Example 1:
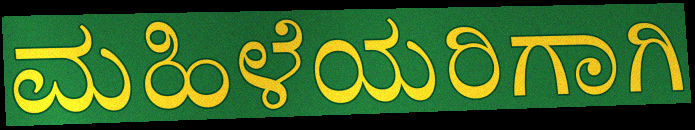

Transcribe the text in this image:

ಮಹಿಳೆಯರಿಗಾಗಿ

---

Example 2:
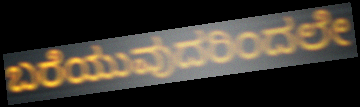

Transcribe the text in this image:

ಬರೆಯುವುದರಿಂದಲೇ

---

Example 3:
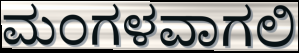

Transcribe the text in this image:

ಮಂಗಳವಾಗಲಿ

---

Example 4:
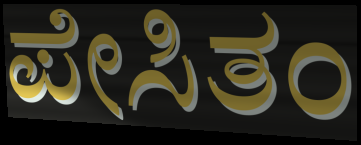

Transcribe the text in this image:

ಪೇಸಿತಂ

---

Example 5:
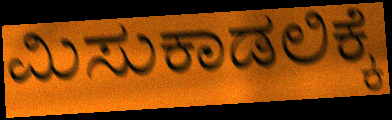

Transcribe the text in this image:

ಮಿಸುಕಾಡಲಿಕ್ಕೆ